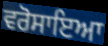
ਵਰੋਸਾਇਆ